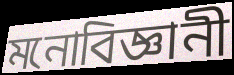
মনোবিজ্ঞানী